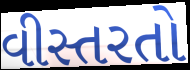
વીસ્તરતો